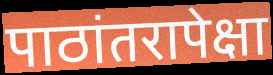
पाठांतरापेक्षा